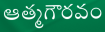
ఆత్మగౌరవం